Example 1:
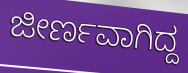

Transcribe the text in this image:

ಜೀರ್ಣವಾಗಿದ್ದ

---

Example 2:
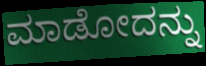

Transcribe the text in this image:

ಮಾಡೋದನ್ನು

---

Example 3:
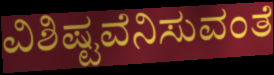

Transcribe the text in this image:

ವಿಶಿಷ್ಟವೆನಿಸುವಂತೆ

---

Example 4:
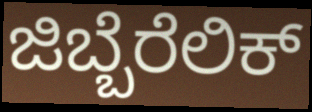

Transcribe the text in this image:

ಜಿಬ್ಬೆರೆಲಿಕ್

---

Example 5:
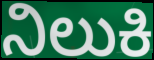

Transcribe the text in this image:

ನಿಲುಕಿ